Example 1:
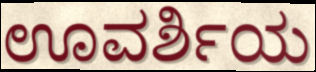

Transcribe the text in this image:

ಊವರ್ಶಿಯ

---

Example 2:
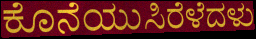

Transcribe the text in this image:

ಕೊನೆಯುಸಿರೆಳೆದಳು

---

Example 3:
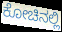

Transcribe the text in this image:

ಕೋಚಿನಲ್ಲಿ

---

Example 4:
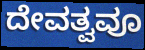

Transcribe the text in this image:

ದೇವತ್ವವೂ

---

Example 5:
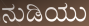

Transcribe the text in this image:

ನುಡಿಯು